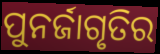
ପୁନର୍ଜାଗୃତିର